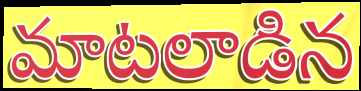
మాటలాడిన